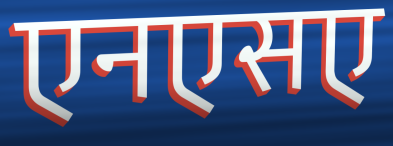
एनएसए